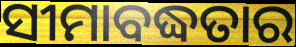
ସୀମାବଦ୍ଧତାର